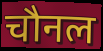
चौनल